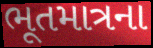
ભૂતમાત્રના